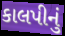
કાલપીનું